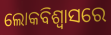
ଲୋକବିଶ୍ୱାସରେ